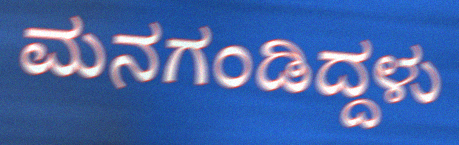
ಮನಗಂಡಿದ್ದಳು